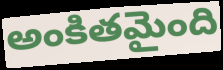
అంకితమైంది